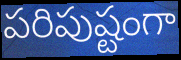
పరిపుష్టంగా